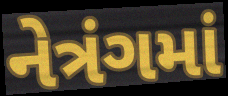
નેત્રંગમાં